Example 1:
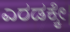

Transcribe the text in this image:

ಎರಡಕ್ಕೇ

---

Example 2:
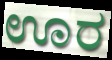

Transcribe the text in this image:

ಊರ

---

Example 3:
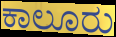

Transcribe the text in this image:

ಕಾಲೂರು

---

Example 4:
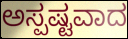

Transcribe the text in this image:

ಅಸ್ಪಷ್ಟವಾದ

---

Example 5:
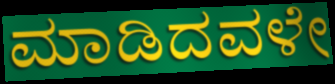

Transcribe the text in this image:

ಮಾಡಿದವಳೇ